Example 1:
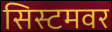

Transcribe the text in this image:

सिस्टमवर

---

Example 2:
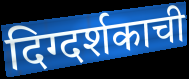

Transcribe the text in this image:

दिग्दर्शकाची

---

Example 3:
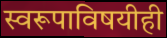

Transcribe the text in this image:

स्वरूपाविषयीही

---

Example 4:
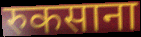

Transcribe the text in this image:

रुकसाना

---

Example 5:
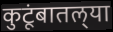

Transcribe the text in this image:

कुटूंबातल्या